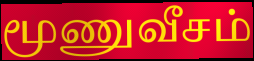
மூணுவீசம்